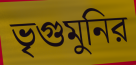
ভৃগুমুনির